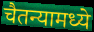
चैतन्यामध्ये